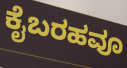
ಕೈಬರಹವೂ